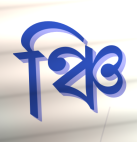
ঞ্চি